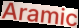
Aramic